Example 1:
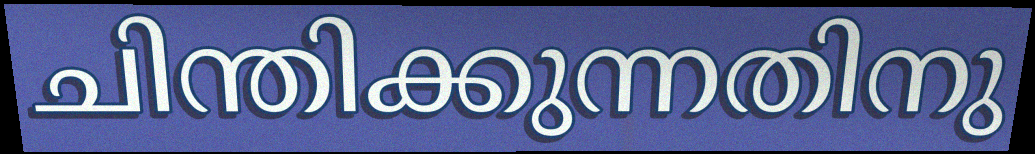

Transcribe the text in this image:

ചിന്തിക്കുന്നതിനു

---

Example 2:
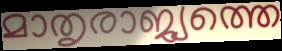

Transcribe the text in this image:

മാതൃരാജ്യത്തെ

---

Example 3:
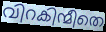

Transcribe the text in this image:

വിറകിന്മീതെ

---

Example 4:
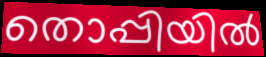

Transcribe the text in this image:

തൊപ്പിയിൽ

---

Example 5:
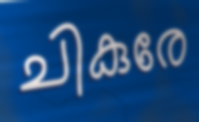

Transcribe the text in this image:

ചികുരേ